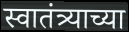
स्वातंत्र्याच्या